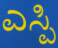
ಎಸ್ಪಿ